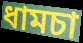
ধামচা